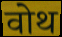
वोथ